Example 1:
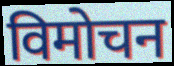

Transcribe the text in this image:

विमोचन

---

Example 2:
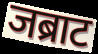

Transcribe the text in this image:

जब्राट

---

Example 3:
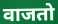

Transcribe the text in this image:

वाजतो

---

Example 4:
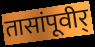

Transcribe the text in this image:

तासांपूवीर्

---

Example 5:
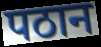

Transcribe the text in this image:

पठान